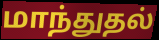
மாந்துதல்